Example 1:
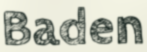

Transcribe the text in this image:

Baden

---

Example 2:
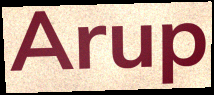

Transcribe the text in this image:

Arup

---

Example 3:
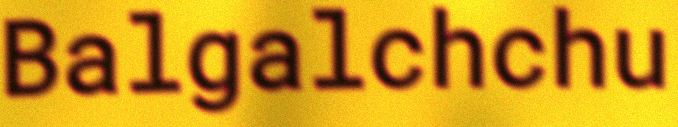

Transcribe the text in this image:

Balgalchchu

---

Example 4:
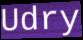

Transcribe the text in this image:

Udry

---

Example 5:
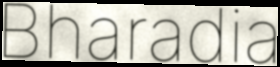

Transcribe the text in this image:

Bharadia